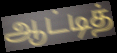
ஆட்டித்